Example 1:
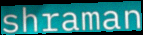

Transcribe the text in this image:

shraman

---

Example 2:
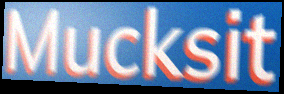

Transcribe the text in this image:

Mucksit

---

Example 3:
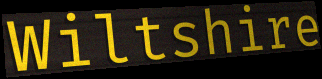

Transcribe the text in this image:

Wiltshire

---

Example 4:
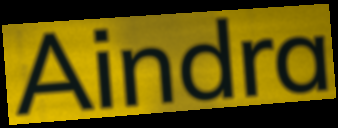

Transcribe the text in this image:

Aindra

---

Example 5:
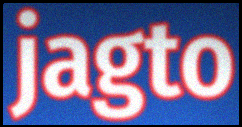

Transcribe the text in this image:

jagto